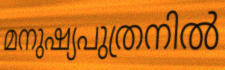
മനുഷ്യപുത്രനിൽ